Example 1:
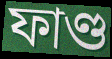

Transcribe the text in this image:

ফাণ্ড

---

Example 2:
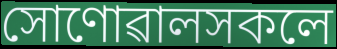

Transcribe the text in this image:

সোণোৱালসকলে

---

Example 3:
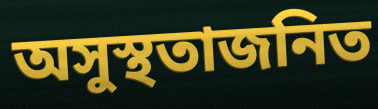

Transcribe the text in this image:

অসুস্থতাজনিত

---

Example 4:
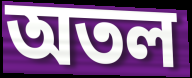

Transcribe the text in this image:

অতল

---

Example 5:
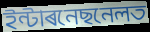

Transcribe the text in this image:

ইন্টাৰনেছনেলত